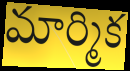
మార్మిక